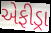
એફીડ્રા